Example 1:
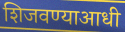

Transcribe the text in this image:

शिजवण्याआधी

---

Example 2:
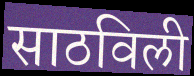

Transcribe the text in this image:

साठविली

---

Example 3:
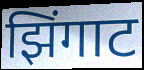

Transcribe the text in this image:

झिंगाट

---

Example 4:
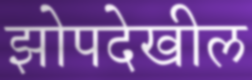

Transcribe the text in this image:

झोपदेखील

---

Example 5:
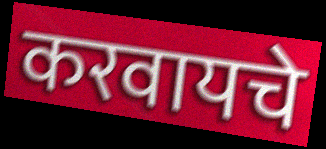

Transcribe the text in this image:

करवायचे